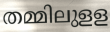
തമ്മിലുളള